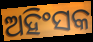
ଅହିଂସକ